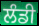
ਲੰਡੀ